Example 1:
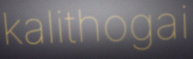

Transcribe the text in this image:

kalithogai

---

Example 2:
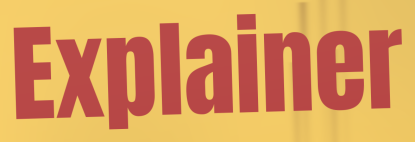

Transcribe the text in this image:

Explainer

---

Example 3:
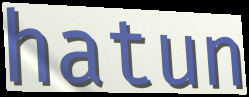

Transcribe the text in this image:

hatun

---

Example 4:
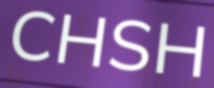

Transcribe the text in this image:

CHSH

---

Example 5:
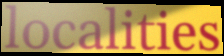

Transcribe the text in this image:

localities